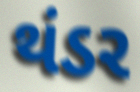
થંડર